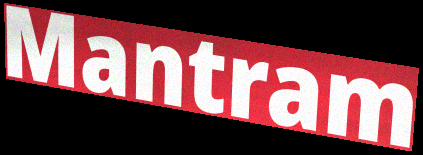
Mantram